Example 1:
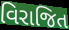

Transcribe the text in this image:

વિરાજિત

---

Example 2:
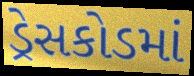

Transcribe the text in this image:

ડ્રેસકોડમાં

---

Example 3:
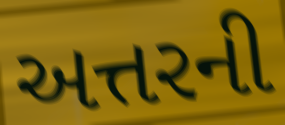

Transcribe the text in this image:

અત્તરની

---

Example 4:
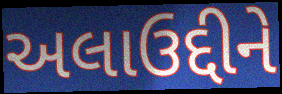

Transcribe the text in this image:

અલાઉદ્દીને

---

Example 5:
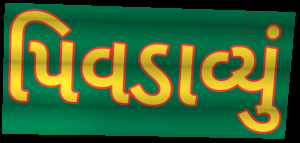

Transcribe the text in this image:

પિવડાવ્યું